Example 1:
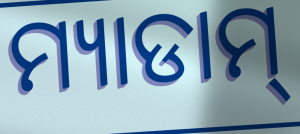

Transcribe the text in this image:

ମ୍ୟାଡାମ୍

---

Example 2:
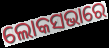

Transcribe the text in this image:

ଲୋକସଭାରେ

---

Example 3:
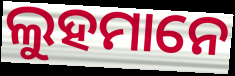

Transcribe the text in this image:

ଲୁହମାନେ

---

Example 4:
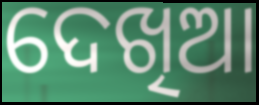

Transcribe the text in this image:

ଦେଖିଆ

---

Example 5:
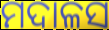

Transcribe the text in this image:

ମଦାଳସ